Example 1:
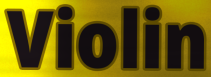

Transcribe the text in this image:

Violin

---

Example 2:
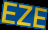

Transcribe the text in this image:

EZE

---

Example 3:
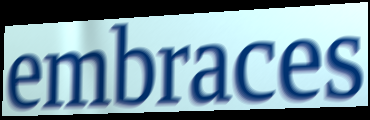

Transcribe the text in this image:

embraces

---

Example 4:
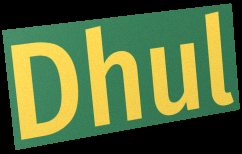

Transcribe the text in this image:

Dhul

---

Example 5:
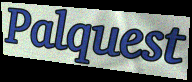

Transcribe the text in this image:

Palquest